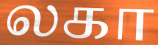
லகா